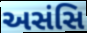
અસંસિ